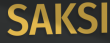
SAKSI